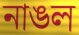
নাঙল